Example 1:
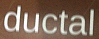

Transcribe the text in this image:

ductal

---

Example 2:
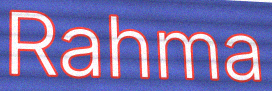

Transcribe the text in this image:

Rahma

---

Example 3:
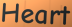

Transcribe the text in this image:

Heart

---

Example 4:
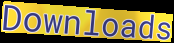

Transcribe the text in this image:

Downloads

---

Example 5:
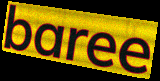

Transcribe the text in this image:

baree